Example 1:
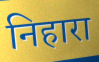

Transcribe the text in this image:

निहारा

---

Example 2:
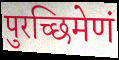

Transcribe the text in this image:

पुरच्छिमेणं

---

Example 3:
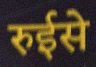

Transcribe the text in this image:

रुईसे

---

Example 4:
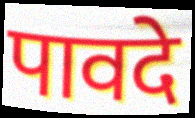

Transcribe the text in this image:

पावदे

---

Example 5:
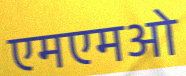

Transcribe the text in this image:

एमएमओ